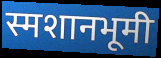
स्मशानभूमी